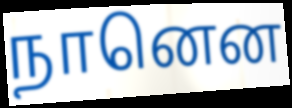
நானென